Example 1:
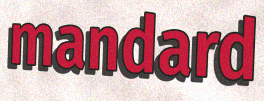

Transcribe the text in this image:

mandard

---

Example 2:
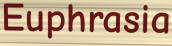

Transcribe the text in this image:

Euphrasia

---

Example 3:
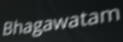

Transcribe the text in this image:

Bhagawatam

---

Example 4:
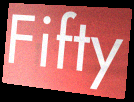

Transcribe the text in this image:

Fifty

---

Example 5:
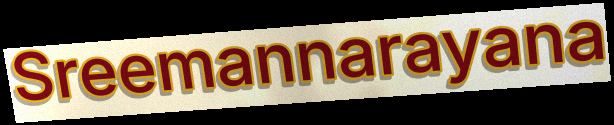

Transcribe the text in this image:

Sreemannarayana